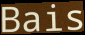
Bais